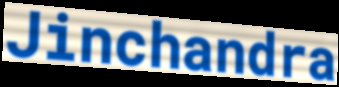
Jinchandra